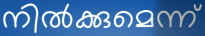
നിൽക്കുമെന്ന്